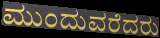
ಮುಂದುವರೆದರು